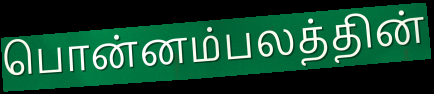
பொன்னம்பலத்தின்